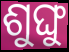
ଶୁଙ୍ଘୁ